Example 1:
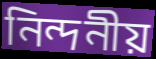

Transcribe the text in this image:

নিন্দনীয়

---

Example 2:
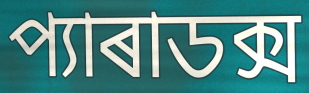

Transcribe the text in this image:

প্যাৰাডক্স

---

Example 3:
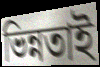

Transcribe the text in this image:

ভিন্নতাই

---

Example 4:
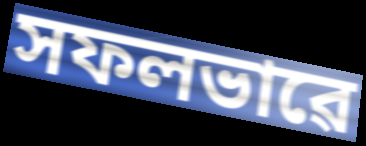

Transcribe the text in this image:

সফলভাৱে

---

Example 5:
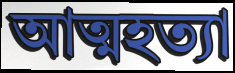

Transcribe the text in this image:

আত্মহত্যা